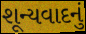
શૂન્યવાદનું